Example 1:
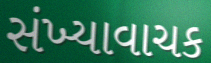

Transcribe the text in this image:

સંખ્યાવાચક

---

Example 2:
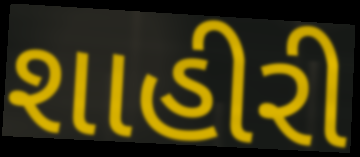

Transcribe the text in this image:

શાહીરી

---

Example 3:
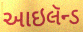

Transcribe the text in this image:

આઇલૅન્ડ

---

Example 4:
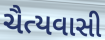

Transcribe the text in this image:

ચૈત્યવાસી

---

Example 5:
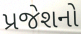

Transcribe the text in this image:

પ્રજેશનો